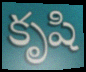
కృషి